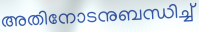
അതിനോടനുബന്ധിച്ച്